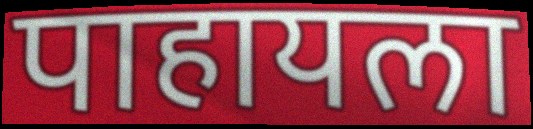
पाहायला